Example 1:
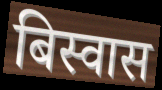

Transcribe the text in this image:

बिस्वास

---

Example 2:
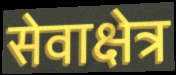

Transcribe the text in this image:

सेवाक्षेत्र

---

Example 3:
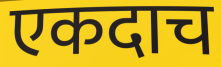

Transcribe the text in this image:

एकदाच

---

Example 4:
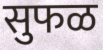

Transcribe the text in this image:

सुफळ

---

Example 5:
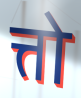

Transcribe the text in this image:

त्तो